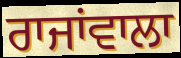
ਰਾਜਾਂਵਾਲਾ